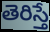
తెరిస్తే